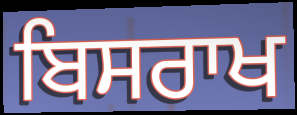
ਬਿਸਰਾਖ